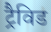
ट्रैविड